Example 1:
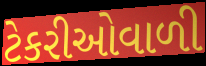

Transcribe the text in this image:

ટેકરીઓવાળી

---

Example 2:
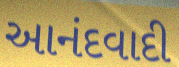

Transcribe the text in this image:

આનંદવાદી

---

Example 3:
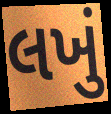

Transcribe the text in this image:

લખું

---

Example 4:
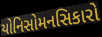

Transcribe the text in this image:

યોનિસોમનસિકારો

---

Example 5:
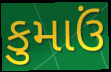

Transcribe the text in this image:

કુમાઉં